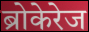
ब्रोकेरेज